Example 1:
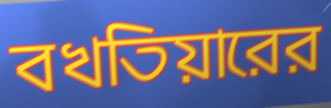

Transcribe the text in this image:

বখতিয়ারের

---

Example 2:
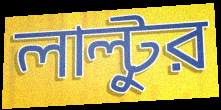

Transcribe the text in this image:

লাল্টুর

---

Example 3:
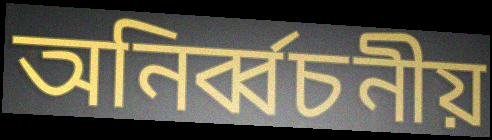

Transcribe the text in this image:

অনির্ব্বচনীয়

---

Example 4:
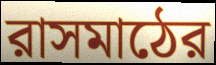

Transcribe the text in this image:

রাসমাঠের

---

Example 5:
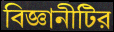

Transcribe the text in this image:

বিজ্ঞানীটির